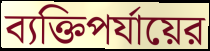
ব্যক্তিপর্যায়ের